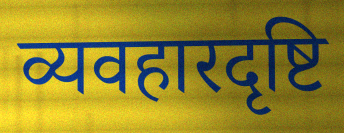
व्यवहारदृष्टि